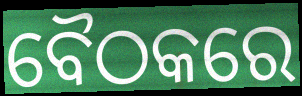
ବୈଠକରେ